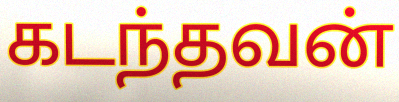
கடந்தவன்